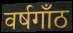
वर्षगाँठ